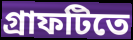
গ্রাফটিতে